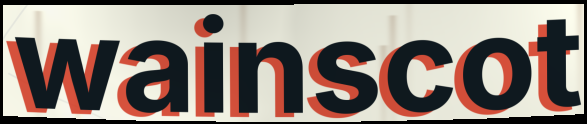
wainscot